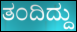
ತಂದಿದ್ದು